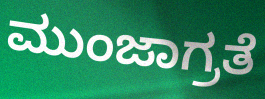
ಮುಂಜಾಗ್ರತೆ